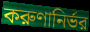
করুণানির্ভর